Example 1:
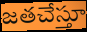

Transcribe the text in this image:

జతచేస్తూ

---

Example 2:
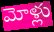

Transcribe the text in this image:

మోళ్లు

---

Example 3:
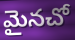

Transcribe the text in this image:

మైనచో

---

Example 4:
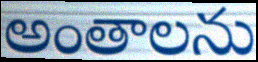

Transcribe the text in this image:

అంతాలను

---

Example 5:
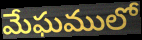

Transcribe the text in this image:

మేఘములో